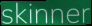
skinner